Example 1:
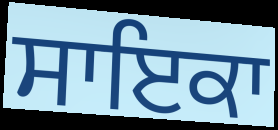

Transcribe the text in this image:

ਸਾਇਕਾ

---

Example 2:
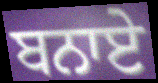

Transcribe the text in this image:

ਬਨਾਏ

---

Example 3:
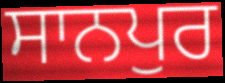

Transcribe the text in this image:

ਸਾਨਪੁਰ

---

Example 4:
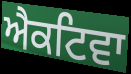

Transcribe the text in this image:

ਐਕਟਿਵਾ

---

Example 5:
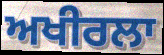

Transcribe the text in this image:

ਅਖੀਰਲਾ